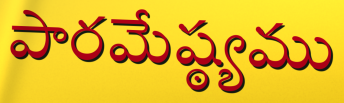
పారమేష్ఠ్యము